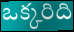
ఒక్కరిది